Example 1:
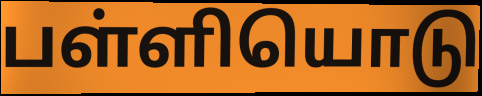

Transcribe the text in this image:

பள்ளியொடு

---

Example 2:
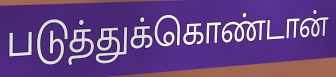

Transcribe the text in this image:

படுத்துக்கொண்டான்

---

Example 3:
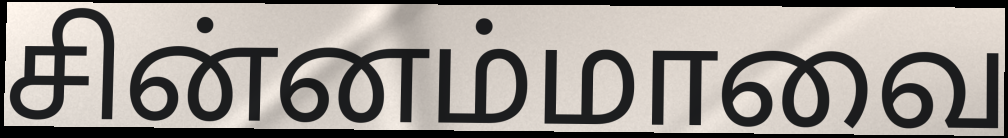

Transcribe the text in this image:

சின்னம்மாவை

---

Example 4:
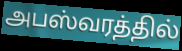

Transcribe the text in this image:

அபஸ்வரத்தில்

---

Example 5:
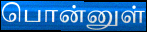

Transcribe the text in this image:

பொன்னுள்